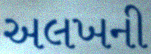
અલખની